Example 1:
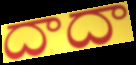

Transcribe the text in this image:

దాదా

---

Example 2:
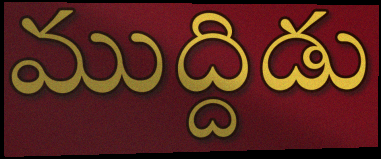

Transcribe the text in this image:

ముద్దిడు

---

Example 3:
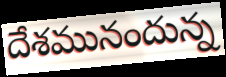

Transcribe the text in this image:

దేశమునందున్న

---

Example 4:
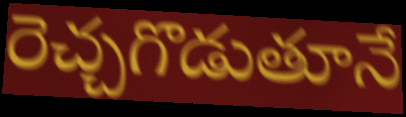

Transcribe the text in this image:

రెచ్చగొడుతూనే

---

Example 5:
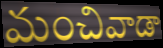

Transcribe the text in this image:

మంచివాడా